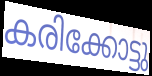
കരിക്കോട്ടു